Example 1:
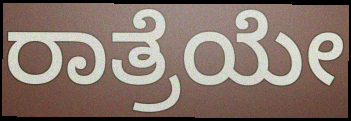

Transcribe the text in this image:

ರಾತ್ರೆಯೇ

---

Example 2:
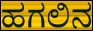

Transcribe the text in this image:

ಹಗಲಿನ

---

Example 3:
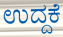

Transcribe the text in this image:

ಉದ್ದಕೆ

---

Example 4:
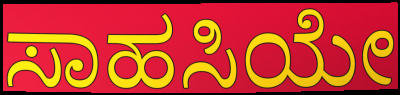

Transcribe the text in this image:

ಸಾಹಸಿಯೇ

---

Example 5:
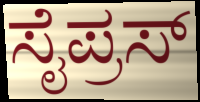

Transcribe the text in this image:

ಸೈಪ್ರಸ್